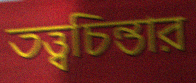
তত্ত্বচিন্তার